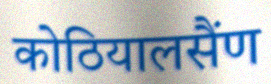
कोठियालसैंण